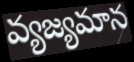
వ్యజ్యమాన